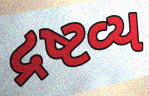
દ્રષ્ટવ્ય